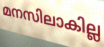
മനസിലാകില്ല